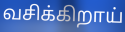
வசிக்கிறாய்